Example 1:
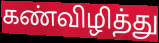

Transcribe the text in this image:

கண்விழித்து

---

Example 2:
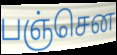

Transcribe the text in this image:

பஞ்சென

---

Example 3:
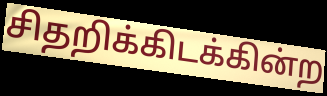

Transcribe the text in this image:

சிதறிக்கிடக்கின்ற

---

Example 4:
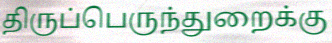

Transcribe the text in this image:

திருப்பெருந்துறைக்கு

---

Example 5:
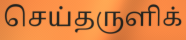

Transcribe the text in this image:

செய்தருளிக்